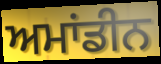
ਅਮਾਂਡੀਨ